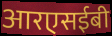
आरएसईबी